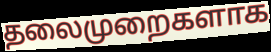
தலைமுறைகளாக